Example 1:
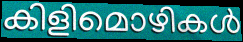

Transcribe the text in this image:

കിളിമൊഴികൾ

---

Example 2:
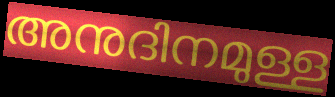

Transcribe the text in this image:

അനുദിനമുള്ള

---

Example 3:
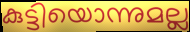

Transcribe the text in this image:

കുട്ടിയൊന്നുമല്ല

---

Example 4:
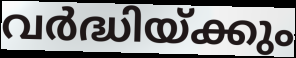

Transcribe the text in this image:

വർദ്ധിയ്ക്കും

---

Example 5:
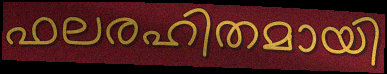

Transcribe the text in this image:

ഫലരഹിതമായി